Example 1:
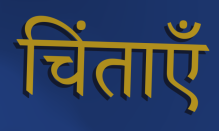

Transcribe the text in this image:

चिंताएँ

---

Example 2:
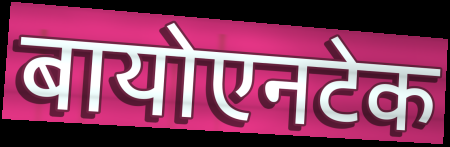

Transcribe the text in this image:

बायोएनटेक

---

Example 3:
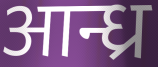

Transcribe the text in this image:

आन्ध्र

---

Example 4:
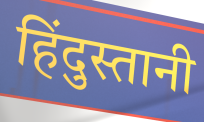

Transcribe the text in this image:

हिंदुस्तानी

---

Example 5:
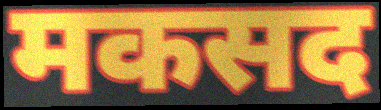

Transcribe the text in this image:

मकसद